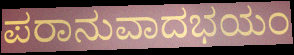
ಪರಾನುವಾದಭಯಂ